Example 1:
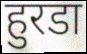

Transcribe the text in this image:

हुरडा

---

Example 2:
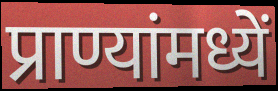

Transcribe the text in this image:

प्राण्यांमध्यें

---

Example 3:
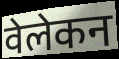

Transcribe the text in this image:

वेलेकन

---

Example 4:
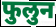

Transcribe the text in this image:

फुलुन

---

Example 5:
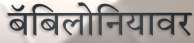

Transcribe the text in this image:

बॅबिलोनियावर